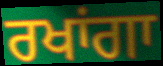
ਰਖਾਂਗਾ